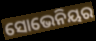
ସୋଭେନିୟର